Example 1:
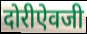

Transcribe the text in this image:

दोरीऐवजी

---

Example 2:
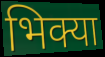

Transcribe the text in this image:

भिक्या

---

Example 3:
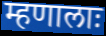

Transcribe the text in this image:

म्हणालाः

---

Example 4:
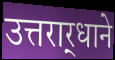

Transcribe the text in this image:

उत्तरार्धाने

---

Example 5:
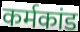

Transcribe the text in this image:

कर्मकांड